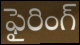
ఫైరింగ్